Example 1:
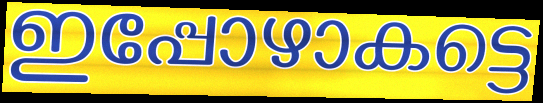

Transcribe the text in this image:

ഇപ്പോഴാകട്ടെ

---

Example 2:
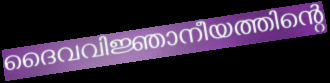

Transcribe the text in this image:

ദൈവവിജ്ഞാനീയത്തിന്റെ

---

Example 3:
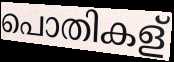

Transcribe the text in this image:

പൊതികള്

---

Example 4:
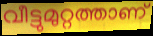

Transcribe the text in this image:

വീട്ടുമുറ്റത്താണ്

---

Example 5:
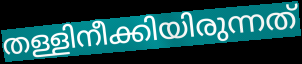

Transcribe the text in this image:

തള്ളിനീക്കിയിരുന്നത്